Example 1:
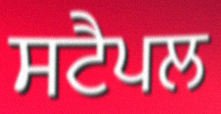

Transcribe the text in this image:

ਸਟੈਪਲ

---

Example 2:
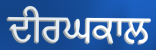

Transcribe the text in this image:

ਦੀਰਘਕਾਲ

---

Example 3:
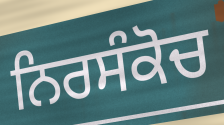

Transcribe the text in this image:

ਨਿਰਸੰਕੋਚ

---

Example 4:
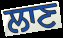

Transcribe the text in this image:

ਲਾਣ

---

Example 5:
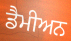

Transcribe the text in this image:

ਡੈਮੀਅਨ